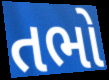
તભો